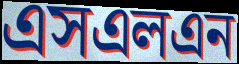
এসএলএন